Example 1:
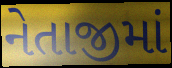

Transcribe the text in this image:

નેતાજીમાં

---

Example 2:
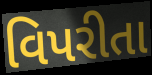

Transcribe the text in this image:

વિપરીતા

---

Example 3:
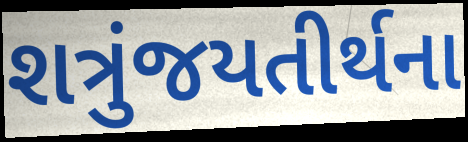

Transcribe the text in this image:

શત્રુંજયતીર્થના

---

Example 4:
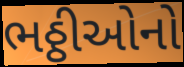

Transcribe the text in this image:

ભઠ્ઠીઓનો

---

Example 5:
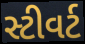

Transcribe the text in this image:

સ્ટીવર્ટ